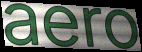
aero